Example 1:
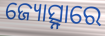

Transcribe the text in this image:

ଜ୍ୟୋତ୍ସ୍ନାରେ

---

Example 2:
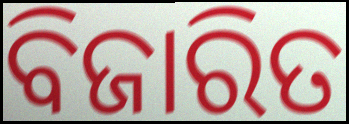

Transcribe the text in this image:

ବିଜାରିତ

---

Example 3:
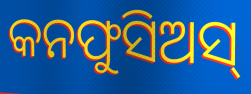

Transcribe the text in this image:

କନଫୁସିଅସ୍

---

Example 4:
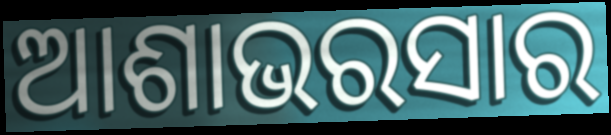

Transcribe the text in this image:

ଆଶାଭରସାର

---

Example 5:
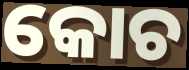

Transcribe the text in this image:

କୋଚ